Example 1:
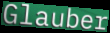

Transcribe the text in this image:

Glauber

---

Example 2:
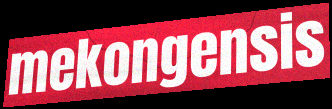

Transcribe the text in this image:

mekongensis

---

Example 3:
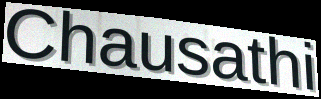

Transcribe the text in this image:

Chausathi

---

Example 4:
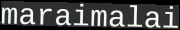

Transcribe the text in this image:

maraimalai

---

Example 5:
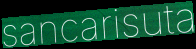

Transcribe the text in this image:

sancarisuta